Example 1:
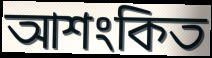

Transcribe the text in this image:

আশংকিত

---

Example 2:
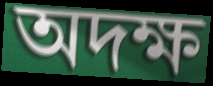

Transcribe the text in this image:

অদক্ষ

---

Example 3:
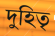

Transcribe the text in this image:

দুহিতৃ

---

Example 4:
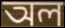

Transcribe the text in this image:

অল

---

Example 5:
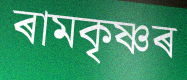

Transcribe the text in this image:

ৰামকৃষ্ণৰ